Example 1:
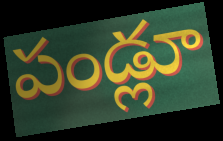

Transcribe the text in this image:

పండ్లూ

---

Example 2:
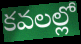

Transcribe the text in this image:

కవలల్లో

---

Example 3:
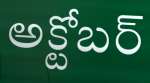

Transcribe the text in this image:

అక్టోబర్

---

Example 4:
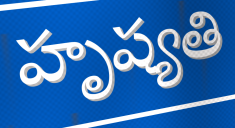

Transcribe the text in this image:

హృష్యతి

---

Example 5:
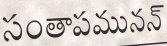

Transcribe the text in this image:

సంతాపమునన్